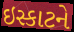
ઇસ્કાટને